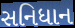
સનિધાન